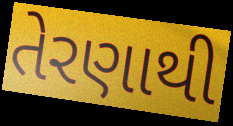
તેરણાથી